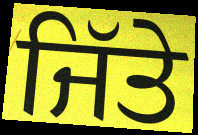
ਜਿੱਤੇ